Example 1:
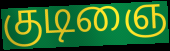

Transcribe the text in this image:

குடிஞை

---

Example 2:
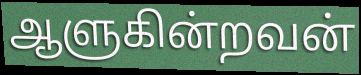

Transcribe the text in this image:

ஆளுகின்றவன்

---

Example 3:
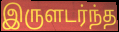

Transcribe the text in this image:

இருளடர்ந்த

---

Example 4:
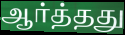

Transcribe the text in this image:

ஆர்த்தது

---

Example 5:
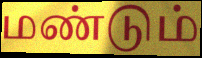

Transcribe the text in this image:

மண்டும்